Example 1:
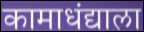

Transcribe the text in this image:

कामाधंद्याला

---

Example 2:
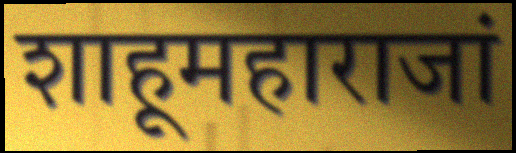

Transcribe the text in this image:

शाहूमहाराजां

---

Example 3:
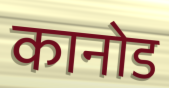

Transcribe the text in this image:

कानोड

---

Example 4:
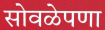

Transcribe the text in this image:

सोवळेपणा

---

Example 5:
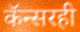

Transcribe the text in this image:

कॅन्सरही